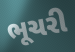
ભૂચરી